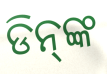
ଡିନ୍‌ଙ୍କ